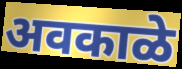
अवकाळे